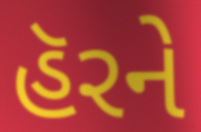
હૅરને